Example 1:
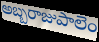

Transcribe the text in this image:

అబ్బరాజుపాలెం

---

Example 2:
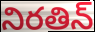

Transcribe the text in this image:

నిరతిన్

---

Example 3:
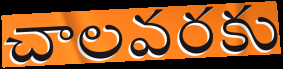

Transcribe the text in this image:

చాలవరకు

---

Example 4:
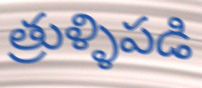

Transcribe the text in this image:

త్రుళ్ళిపడి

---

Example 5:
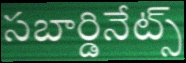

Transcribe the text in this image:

సబార్డినేట్స్